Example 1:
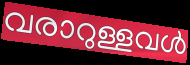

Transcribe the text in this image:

വരാറുള്ളവൾ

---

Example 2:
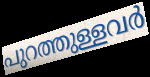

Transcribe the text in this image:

പുറത്തുള്ളവർ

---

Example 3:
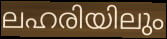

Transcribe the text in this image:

ലഹരിയിലും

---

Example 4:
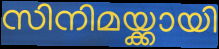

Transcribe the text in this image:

സിനിമയ്ക്കായി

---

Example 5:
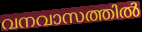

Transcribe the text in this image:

വനവാസത്തിൽ